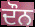
ਦੌਨ